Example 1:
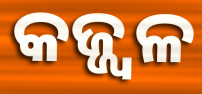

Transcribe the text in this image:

କଜ୍ଜ୍ୱଳ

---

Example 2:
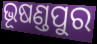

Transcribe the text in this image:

ଭୂଷଣ୍ଡପୁର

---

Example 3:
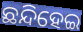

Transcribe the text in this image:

ଛନ୍ଦିହେଇ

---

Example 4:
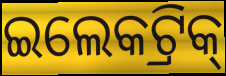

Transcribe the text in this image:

ଇଲେକଟ୍ରିକ୍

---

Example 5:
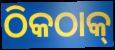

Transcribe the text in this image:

ଠିକଠାକ୍